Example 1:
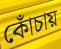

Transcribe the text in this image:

কোঁচায়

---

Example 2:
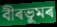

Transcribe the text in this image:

বীৰভূমৰ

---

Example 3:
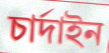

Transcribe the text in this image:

চাৰ্দাইন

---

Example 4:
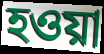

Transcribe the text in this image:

হওয়া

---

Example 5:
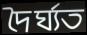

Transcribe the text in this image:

দৈৰ্ঘ্যত